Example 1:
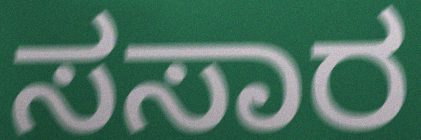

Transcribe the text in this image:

ಸಸಾರ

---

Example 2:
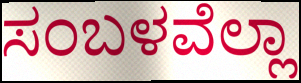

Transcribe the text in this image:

ಸಂಬಳವೆಲ್ಲಾ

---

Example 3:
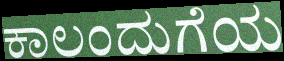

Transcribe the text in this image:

ಕಾಲಂದುಗೆಯ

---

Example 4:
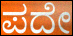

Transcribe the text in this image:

ಪದೇ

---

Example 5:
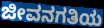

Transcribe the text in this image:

ಜೀವನಗತಿಯ